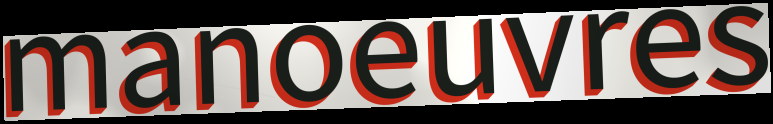
manoeuvres